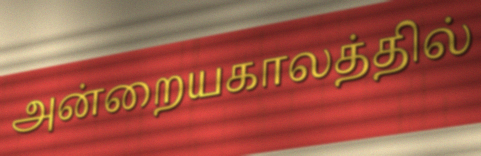
அன்றையகாலத்தில்